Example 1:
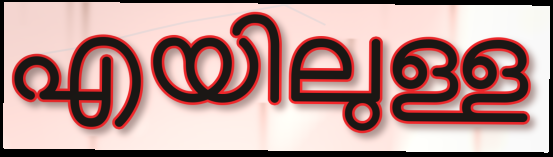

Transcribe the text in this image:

എയിലുള്ള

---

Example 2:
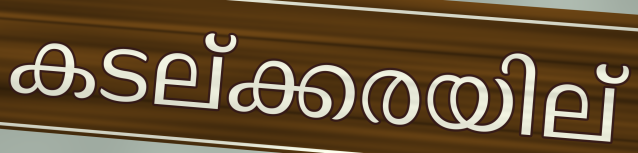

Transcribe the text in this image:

കടല്ക്കരയില്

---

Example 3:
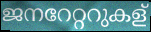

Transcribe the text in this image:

ജനറേറ്ററുകള്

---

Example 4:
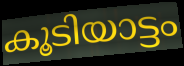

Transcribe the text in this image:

കൂടിയാട്ടം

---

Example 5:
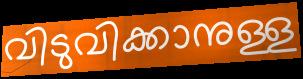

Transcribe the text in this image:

വിടുവിക്കാനുള്ള